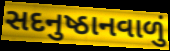
સદનુષ્ઠાનવાળું